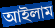
আইলাম